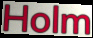
Holm